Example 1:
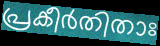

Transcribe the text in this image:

പ്രകീർതിതാഃ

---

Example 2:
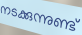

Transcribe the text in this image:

നടക്കുന്നുണ്ട്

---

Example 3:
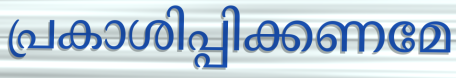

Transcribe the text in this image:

പ്രകാശിപ്പിക്കണമേ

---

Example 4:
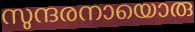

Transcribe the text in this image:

സുന്ദരനായൊരു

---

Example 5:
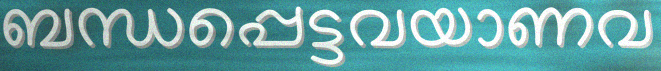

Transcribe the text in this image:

ബന്ധപ്പെട്ടവയാണവ